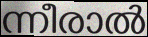
ന്നീരാൽ